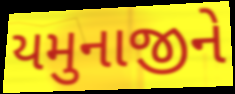
યમુનાજીને